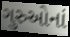
ગુરુઓનાં